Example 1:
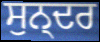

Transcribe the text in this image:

ਸੁਨ੍ਦਰ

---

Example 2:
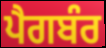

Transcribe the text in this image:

ਪੈਗਬੰਰ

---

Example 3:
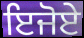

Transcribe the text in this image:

ਇਜੋਏ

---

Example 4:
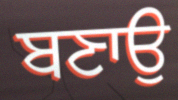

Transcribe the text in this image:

ਬਣਾਉ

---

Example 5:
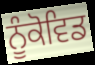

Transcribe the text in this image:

ਨੂੰਕੋਵਿਡ